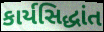
કાર્યસિદ્ધાંત